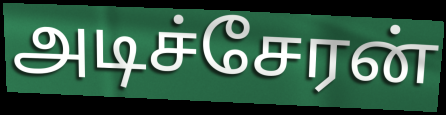
அடிச்சேரன்